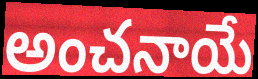
అంచనాయే